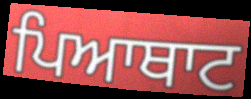
ਪਿਆਥਾਟ